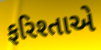
ફરિશ્તાએ